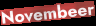
Novembeer